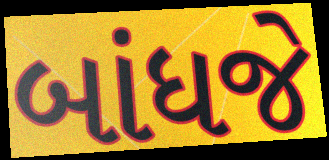
બાંધજે